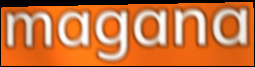
magana